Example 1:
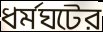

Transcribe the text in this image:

ধর্মঘটের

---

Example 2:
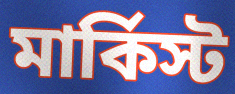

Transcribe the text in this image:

মার্কিস্ট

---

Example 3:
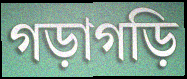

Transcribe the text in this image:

গড়াগড়ি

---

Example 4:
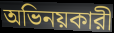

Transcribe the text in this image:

অভিনয়কারী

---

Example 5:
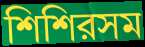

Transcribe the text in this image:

শিশিরসম